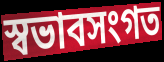
স্বভাবসংগত